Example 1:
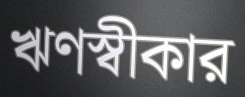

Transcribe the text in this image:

ঋণস্বীকার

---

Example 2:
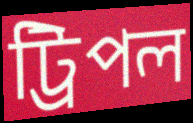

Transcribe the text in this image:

ট্রিপল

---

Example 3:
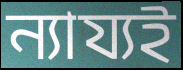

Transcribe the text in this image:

ন্যায্যই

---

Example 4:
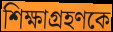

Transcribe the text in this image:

শিক্ষাগ্রহণকে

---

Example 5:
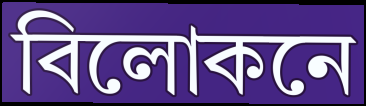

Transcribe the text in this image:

বিলোকনে